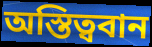
অস্তিত্ববান